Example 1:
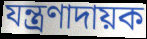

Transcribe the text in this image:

যন্ত্ৰণাদায়ক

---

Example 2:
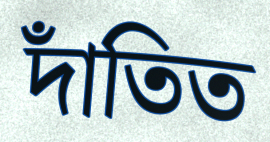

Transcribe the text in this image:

দাঁতিত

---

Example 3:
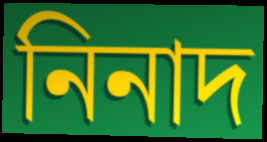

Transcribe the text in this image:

নিনাদ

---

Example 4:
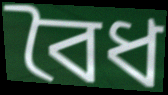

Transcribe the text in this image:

বৈধ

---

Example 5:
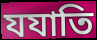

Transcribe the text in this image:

যযাতি